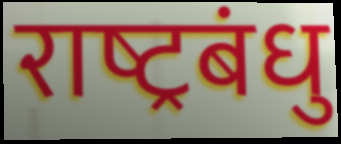
राष्ट्रबंधु